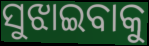
ସୁଝାଇବାକୁ